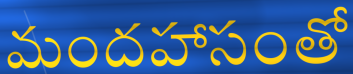
మందహాసంతో